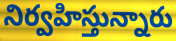
నిర్వహిస్తున్నారు